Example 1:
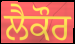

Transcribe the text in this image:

ਲੈਕੌਰ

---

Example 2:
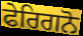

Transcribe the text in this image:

ਫੇਰਿਗਨੋ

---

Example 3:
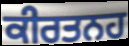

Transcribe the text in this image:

ਕੀਰਤਨਹ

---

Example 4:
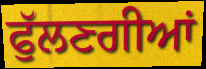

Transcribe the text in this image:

ਫੁੱਲਣਗੀਆਂ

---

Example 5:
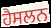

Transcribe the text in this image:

ਹੈਸਲਨ